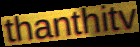
thanthitv